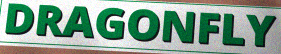
DRAGONFLY